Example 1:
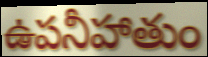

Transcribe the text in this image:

ఉపనీహాతుం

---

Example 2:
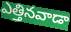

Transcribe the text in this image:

ఎత్తినవాడా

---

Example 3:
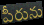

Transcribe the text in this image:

పీరును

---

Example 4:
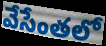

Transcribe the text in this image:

వేసేంతలో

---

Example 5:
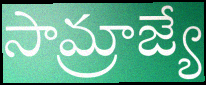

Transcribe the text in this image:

సామ్రాజ్యే